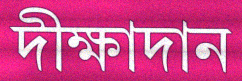
দীক্ষাদান